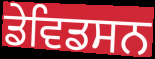
ਡੇਵਿਡਸਨ